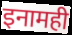
इनामही